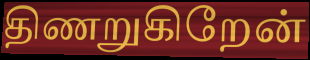
திணறுகிறேன்